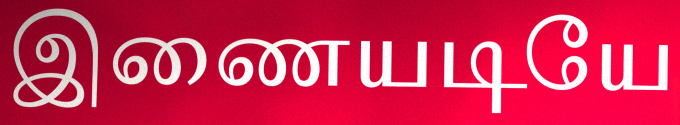
இணையடியே